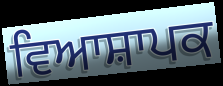
ਵਿਆਸ਼ਾਪਕ